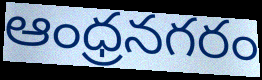
ఆంధ్రనగరం